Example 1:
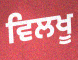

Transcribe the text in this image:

ਵਿਲਖੂ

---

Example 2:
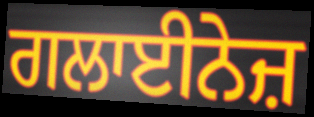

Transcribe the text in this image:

ਗਲਾਈਨੇਜ਼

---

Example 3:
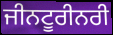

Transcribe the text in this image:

ਜੀਨਟੂਰੀਨਰੀ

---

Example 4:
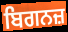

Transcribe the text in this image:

ਬਿਗਨਜ਼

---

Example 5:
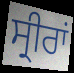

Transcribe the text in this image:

ਸ੍ਰੀਰਾਂ